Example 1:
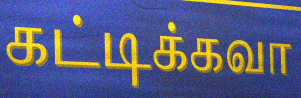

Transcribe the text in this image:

கட்டிக்கவா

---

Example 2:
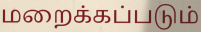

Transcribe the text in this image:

மறைக்கப்படும்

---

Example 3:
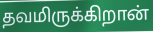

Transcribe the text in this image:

தவமிருக்கிறான்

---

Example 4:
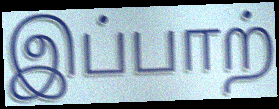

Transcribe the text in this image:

இப்பாற்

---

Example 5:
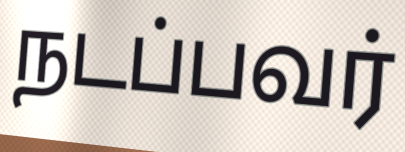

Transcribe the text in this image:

நடப்பவர்